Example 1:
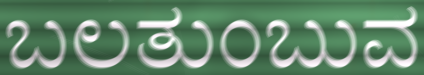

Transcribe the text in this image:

ಬಲತುಂಬುವ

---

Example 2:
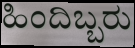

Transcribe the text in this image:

ಹಿಂದಿಬ್ಬರು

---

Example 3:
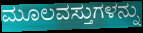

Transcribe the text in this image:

ಮೂಲವಸ್ತುಗಳನ್ನು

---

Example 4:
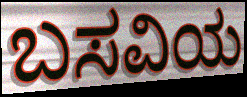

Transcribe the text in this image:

ಬಸವಿಯ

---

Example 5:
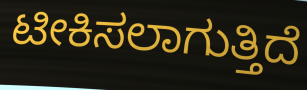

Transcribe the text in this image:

ಟೀಕಿಸಲಾಗುತ್ತಿದೆ